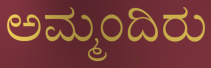
ಅಮ್ಮಂದಿರು